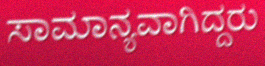
ಸಾಮಾನ್ಯವಾಗಿದ್ದರು